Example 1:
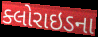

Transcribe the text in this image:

ક્લોરાઇડના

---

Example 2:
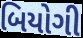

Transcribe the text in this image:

બિયોગી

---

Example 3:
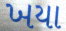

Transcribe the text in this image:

ખયા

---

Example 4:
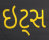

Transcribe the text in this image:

ઇટ્સ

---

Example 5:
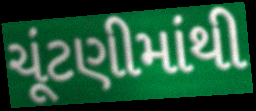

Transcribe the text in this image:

ચૂંટણીમાંથી